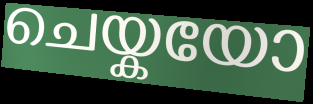
ചെയ്കയോ